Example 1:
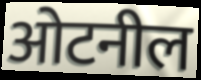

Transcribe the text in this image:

ओटनील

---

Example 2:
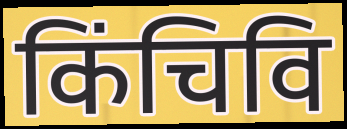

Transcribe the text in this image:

किंचिवि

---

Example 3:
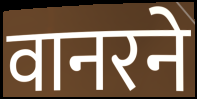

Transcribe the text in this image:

वानरने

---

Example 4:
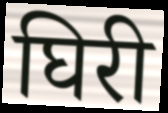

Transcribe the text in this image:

घिरी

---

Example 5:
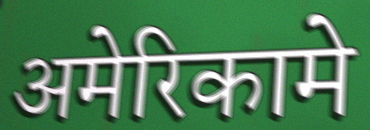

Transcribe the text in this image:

अमेरिकामे